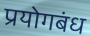
प्रयोगबंध